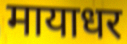
मायाधर